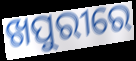
ଖପୁରୀରେ